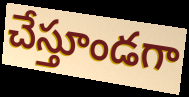
చేస్తూండగా